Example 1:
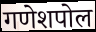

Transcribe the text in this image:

गणेशपोल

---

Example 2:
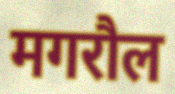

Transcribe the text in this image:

मगरौल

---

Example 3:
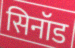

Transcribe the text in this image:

सिनॉड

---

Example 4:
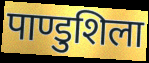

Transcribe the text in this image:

पाण्डुशिला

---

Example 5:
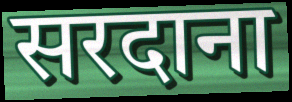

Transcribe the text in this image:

सरदाना